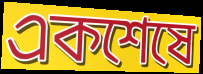
একশেষে